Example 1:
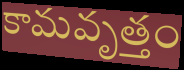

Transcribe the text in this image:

కామవృత్తం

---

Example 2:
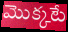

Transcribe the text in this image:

మొక్కటే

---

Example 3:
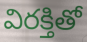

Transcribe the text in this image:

విరక్తితో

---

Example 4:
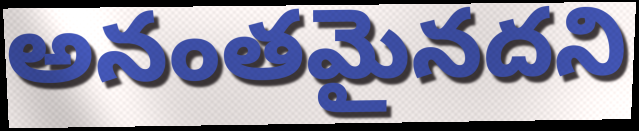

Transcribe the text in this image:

అనంతమైనదని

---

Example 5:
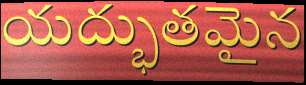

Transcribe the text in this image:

యద్భుతమైన